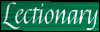
Lectionary